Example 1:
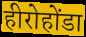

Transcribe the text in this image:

हीरोहोंडा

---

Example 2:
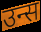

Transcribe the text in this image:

उन्स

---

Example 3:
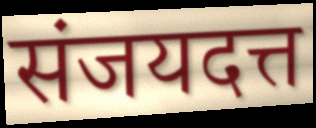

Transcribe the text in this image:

संजयदत्त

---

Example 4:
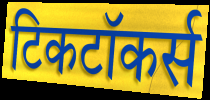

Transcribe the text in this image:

टिकटॉकर्स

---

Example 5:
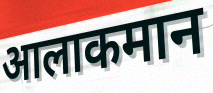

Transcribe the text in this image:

आलाकमान